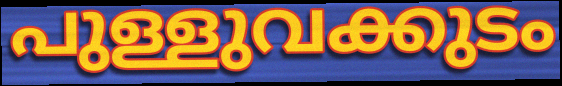
പുള്ളുവക്കുടം